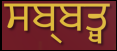
ਸਬ੍ਬਤ੍ਥ